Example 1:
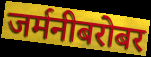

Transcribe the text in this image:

जर्मनीबरोबर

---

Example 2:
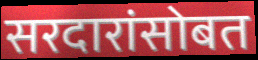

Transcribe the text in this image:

सरदारांसोबत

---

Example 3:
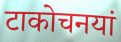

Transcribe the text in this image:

टाकोचनयां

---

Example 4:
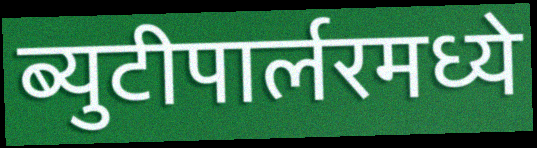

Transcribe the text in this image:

ब्युटीपार्लरमध्ये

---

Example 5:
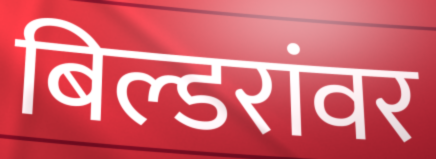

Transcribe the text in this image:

बिल्डरांवर